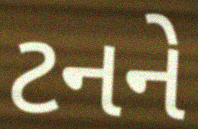
ટનને